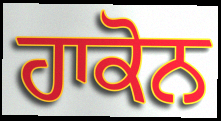
ਹਾਕੋਨ